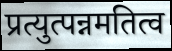
प्रत्युत्पन्नमतित्व